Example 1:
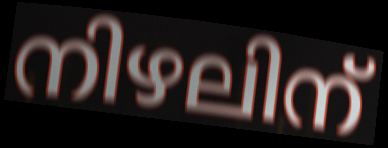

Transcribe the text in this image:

നിഴലിന്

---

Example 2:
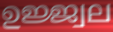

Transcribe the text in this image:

ഉജ്ജ്വല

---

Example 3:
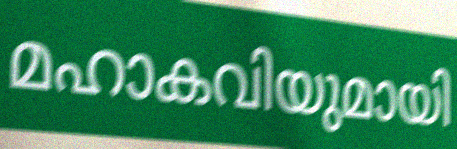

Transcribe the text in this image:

മഹാകവിയുമായി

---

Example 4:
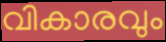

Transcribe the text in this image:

വികാരവും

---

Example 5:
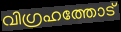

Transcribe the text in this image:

വിഗ്രഹത്തോട്